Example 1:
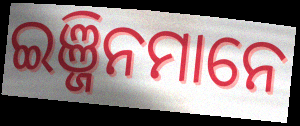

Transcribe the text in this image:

ଇଞ୍ଜିନମାନେ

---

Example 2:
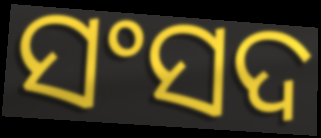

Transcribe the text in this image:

ସଂସଦ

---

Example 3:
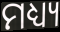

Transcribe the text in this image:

ମଧ୍ୟ୍ୟ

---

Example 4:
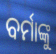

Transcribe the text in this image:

ବର୍ମାଙ୍କୁ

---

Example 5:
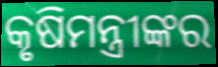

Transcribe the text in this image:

କୃଷିମନ୍ତ୍ରୀଙ୍କର